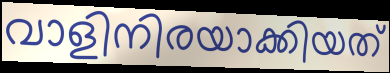
വാളിനിരയാക്കിയത്